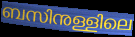
ബസിനുള്ളിലെ